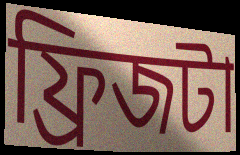
ফ্রিজটা